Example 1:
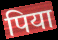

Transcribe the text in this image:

पिया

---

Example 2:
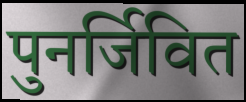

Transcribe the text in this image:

पुनर्जिवित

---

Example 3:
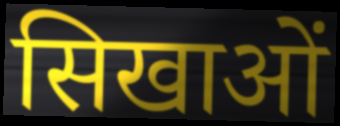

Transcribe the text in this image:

सिखाओं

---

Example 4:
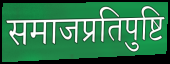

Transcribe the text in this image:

समाजप्रतिपुष्टि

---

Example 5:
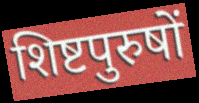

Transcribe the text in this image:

शिष्टपुरुषों